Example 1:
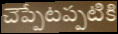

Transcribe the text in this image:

చెప్పేటప్పటికి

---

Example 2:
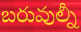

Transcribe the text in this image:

బరువుల్నీ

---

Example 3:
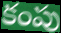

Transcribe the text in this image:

కంపు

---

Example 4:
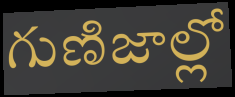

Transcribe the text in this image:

గుణిజాల్లో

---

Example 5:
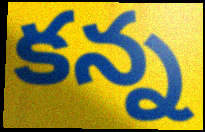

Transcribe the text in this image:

కన్న